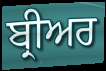
ਬ੍ਰੀਅਰ